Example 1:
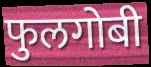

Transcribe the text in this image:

फुलगोबी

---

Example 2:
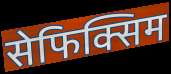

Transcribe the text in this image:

सेफिक्सिम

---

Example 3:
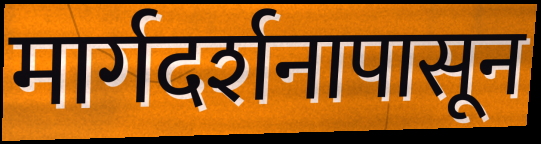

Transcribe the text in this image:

मार्गदर्शनापासून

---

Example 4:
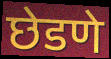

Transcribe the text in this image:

छेडणे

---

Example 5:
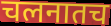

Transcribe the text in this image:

चलनातच